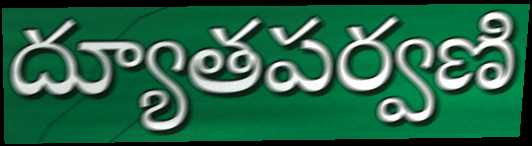
ద్యూతపర్వణి